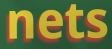
nets